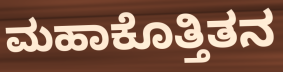
ಮಹಾಕೊತ್ತಿತನ